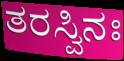
ತರಸ್ವಿನಃ